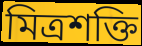
মিত্ৰশক্তি